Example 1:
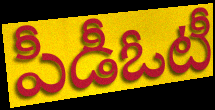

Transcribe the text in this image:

పీడీఓటీ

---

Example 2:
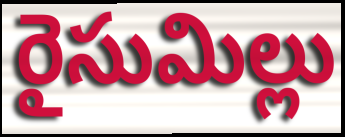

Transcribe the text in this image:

రైసుమిల్లు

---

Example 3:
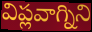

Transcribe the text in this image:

విప్లవాగ్నిని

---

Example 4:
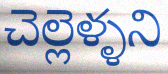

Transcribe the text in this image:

చెల్లెళ్ళని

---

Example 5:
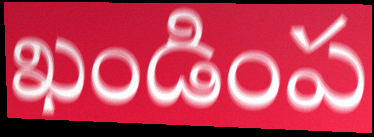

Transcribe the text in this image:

ఖండింప